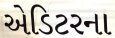
એડિટરના